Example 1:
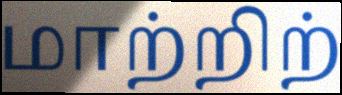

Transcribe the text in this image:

மாற்றிற்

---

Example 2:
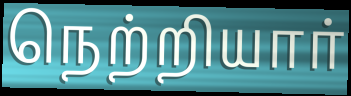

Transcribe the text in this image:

நெற்றியார்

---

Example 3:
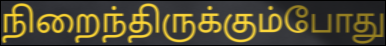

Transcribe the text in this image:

நிறைந்திருக்கும்போது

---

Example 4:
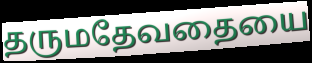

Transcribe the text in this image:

தருமதேவதையை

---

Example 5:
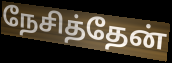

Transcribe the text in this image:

நேசித்தேன்